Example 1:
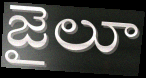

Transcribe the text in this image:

జైలూ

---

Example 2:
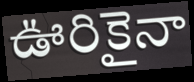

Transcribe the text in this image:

ఊరికైనా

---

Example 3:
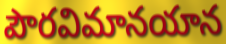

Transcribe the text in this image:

పౌరవిమానయాన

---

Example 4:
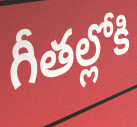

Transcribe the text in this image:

గీతల్లోకి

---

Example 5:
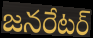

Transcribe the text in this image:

జనరేటర్